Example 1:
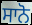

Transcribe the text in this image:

ਸਾਨੋ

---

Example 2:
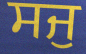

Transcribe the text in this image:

ਸਜੁ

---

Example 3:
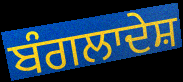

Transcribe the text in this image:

ਬੰਗਲਾਦੇਸ਼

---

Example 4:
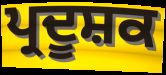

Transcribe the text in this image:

ਪ੍ਰਦੂਸ਼ਕ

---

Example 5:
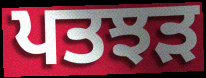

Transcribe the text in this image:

ਪਤਝੜ